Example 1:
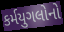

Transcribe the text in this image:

કર્મયુગલોનો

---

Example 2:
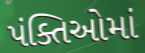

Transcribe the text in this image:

પંક્તિઓમાં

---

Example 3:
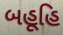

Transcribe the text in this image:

બહૂહિ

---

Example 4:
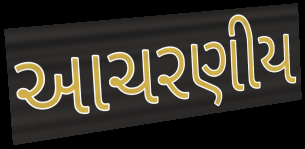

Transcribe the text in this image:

આચરણીય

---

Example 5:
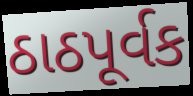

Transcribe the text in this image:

ઠાઠપૂર્વક